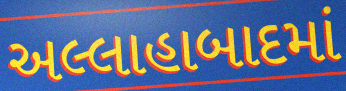
અલ્લાહાબાદમાં